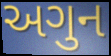
અગુન